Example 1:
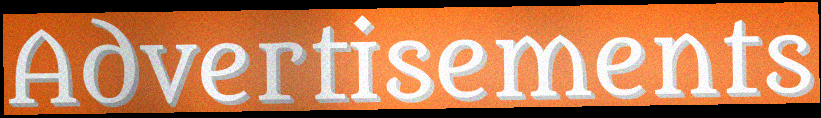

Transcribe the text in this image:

Advertisements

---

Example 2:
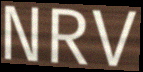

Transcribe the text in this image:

NRV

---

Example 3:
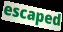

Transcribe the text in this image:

escaped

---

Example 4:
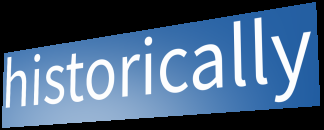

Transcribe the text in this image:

historically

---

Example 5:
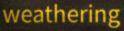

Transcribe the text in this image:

weathering